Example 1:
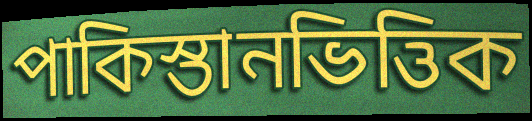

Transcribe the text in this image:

পাকিস্তানভিত্তিক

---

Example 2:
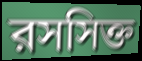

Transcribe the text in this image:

রসসিক্ত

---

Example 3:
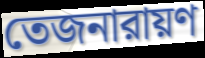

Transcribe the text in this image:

তেজনারায়ণ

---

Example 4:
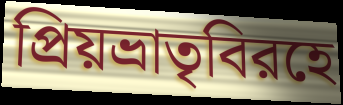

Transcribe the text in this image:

প্রিয়ভ্রাতৃবিরহে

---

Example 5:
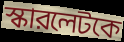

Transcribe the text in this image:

স্কারলেটকে